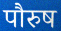
पौरुष